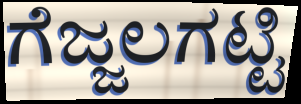
ಗೆಜ್ಜಲಗಟ್ಟಿ